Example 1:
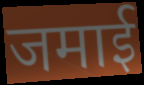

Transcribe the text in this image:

जमाई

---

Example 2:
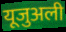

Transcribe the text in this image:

यूजुअली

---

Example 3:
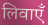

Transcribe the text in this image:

लिवाएँ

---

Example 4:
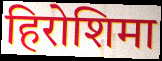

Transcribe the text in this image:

हिरोशिमा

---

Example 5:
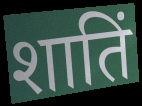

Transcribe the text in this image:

शातिं